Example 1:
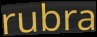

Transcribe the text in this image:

rubra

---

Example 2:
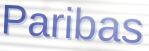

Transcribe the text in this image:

Paribas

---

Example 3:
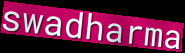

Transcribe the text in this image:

swadharma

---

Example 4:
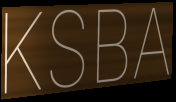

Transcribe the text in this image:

KSBA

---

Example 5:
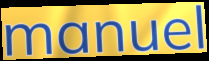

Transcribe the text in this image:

manuel